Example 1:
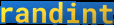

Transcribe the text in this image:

randint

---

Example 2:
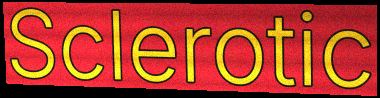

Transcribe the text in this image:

Sclerotic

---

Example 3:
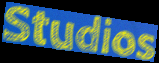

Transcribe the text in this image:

Studios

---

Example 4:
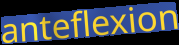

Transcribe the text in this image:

anteflexion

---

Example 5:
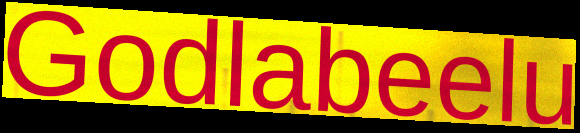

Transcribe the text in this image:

Godlabeelu